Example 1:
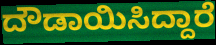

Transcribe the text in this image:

ದೌಡಾಯಿಸಿದ್ದಾರೆ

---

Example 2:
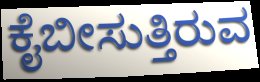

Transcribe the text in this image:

ಕೈಬೀಸುತ್ತಿರುವ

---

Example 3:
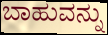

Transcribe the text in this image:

ಬಾಹುವನ್ನು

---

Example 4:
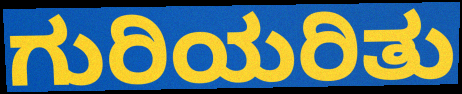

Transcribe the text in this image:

ಗುರಿಯರಿತು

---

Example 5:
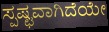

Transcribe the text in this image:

ಸ್ಪಷ್ಟವಾಗಿದೆಯೇ